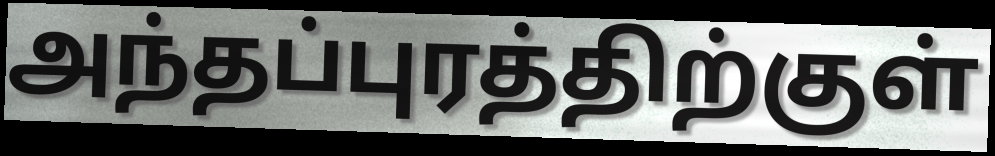
அந்தப்புரத்திற்குள்